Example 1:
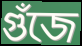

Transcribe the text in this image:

গুঁজে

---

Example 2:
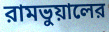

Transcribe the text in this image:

রামভুয়ালের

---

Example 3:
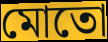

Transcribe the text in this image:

মোতো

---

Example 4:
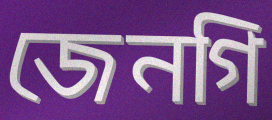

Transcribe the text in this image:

জেনগি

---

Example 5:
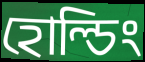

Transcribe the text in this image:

হোল্ডিং